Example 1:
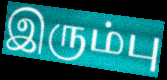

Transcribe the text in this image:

இரும்பு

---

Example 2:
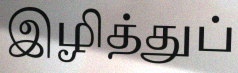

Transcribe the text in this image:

இழித்துப்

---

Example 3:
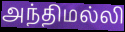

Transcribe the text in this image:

அந்திமல்லி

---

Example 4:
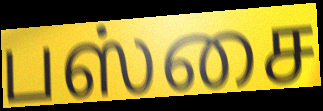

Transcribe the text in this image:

பஸ்சை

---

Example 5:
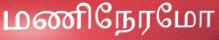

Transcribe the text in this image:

மணிநேரமோ